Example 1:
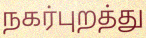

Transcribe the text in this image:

நகர்புறத்து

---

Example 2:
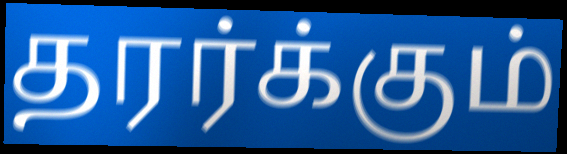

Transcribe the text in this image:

தரர்க்கும்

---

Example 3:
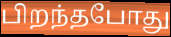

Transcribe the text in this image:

பிறந்தபோது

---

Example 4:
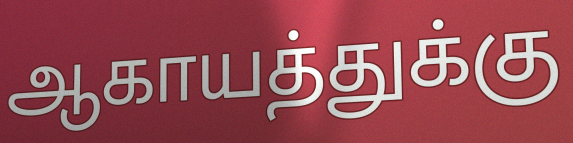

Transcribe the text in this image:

ஆகாயத்துக்கு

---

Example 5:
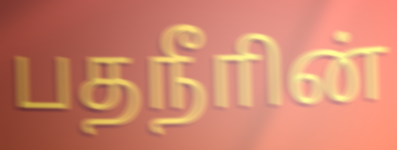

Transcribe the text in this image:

பதநீரின்